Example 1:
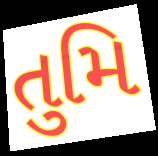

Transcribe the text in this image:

તુમિ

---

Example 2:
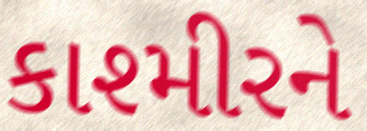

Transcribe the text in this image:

કાશ્મીરને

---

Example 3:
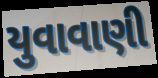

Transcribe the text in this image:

યુવાવાણી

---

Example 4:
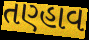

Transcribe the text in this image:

તણ્હાવ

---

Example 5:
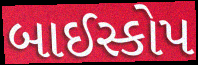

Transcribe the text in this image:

બાઈસ્કોપ